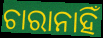
ଚାରାନାହିଁ